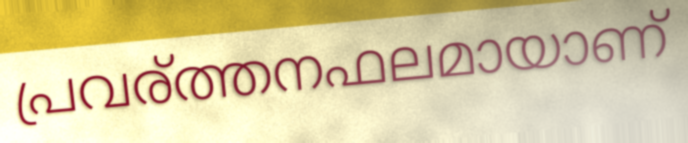
പ്രവര്ത്തനഫലമായാണ്